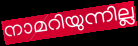
നാമറിയുന്നില്ല